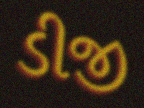
ડીજી